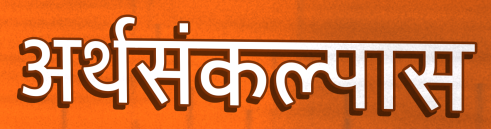
अर्थसंकल्पास